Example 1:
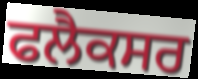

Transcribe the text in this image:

ਫਲੈਕਸਰ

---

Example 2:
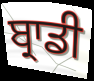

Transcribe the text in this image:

ਬ੍ਰਾਡੀ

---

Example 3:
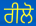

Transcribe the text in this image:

ਰੀਲੋ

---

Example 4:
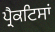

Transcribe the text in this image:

ਪ੍ਰੈਕਟਿਸਾਂ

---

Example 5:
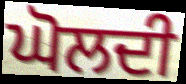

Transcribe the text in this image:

ਘੋਲਦੀ